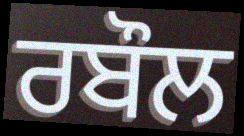
ਰਬੌਲ